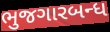
ભુજગારબન્ધ